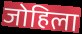
जोहिला